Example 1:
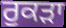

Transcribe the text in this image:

ਰੁਕੜਾ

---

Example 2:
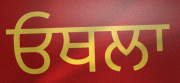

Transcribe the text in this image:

ਓਥਲਾ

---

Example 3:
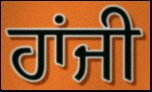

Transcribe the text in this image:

ਹਾਂਜੀ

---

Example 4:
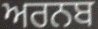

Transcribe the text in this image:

ਅਰਨਬ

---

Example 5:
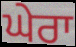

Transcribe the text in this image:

ਘੇਰਾ